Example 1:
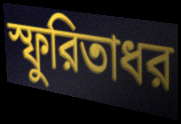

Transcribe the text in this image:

স্ফুরিতাধর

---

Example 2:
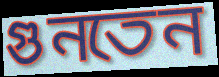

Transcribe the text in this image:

গুনতেন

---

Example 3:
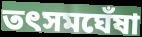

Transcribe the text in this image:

তৎসমঘেঁষা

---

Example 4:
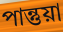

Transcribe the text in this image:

পান্তুয়া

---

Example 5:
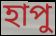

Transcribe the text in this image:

হাপু